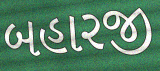
બહારજી